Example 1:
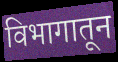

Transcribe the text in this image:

विभागातून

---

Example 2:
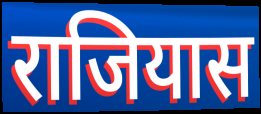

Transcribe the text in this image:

राजियास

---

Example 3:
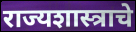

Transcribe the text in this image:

राज्यशास्त्राचे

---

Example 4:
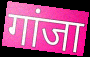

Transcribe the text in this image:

गांजा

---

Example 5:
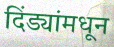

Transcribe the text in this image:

दिंड्यांमधून